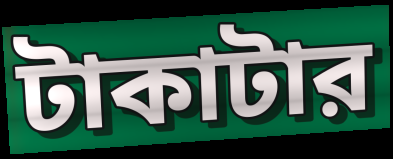
টাকাটার